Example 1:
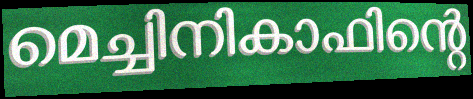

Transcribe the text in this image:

മെച്ചിനികാഫിന്റെ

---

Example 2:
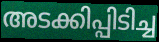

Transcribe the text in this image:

അടക്കിപ്പിടിച്ച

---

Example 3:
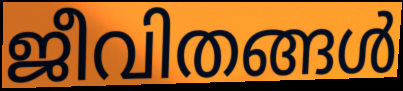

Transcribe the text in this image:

ജീവിതങ്ങൾ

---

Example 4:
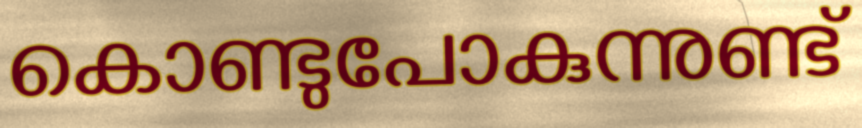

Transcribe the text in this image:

കൊണ്ടുപോകുന്നുണ്ട്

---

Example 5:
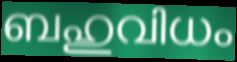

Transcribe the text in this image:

ബഹുവിധം